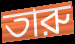
তারু